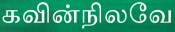
கவின்நிலவே